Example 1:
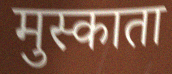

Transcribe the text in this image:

मुस्काता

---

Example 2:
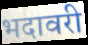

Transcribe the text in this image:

भदावरी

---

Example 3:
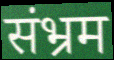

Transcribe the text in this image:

संभ्रम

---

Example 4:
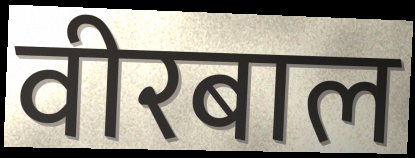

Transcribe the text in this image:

वीरबाल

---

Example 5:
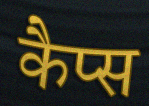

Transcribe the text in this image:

कैप्स